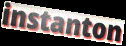
instanton